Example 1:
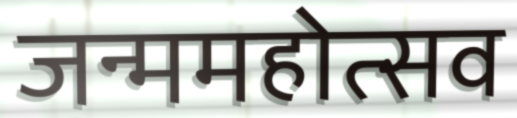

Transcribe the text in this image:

जन्ममहोत्सव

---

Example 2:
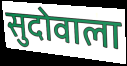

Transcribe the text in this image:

सुदोवाला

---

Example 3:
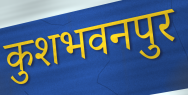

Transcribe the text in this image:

कुशभवनपुर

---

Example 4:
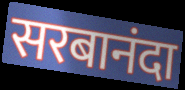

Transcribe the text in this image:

सरबानंदा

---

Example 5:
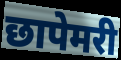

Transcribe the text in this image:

छापेमरी